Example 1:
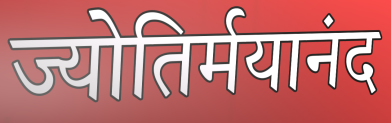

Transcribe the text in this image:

ज्योतिर्मयानंद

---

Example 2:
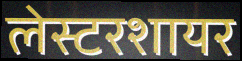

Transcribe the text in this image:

लेस्टरशायर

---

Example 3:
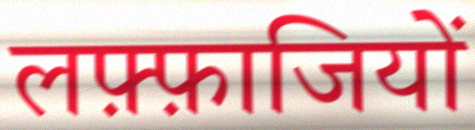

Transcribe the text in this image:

लफ़्फ़ाजियों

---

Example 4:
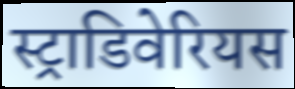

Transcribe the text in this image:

स्ट्राडिवेरियस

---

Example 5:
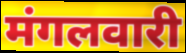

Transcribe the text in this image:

मंगलवारी